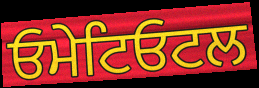
ਓਮੇਟਿਓਟਲ